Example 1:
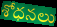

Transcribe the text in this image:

శోధనలు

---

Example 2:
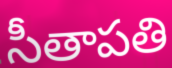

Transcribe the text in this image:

సీతాపతి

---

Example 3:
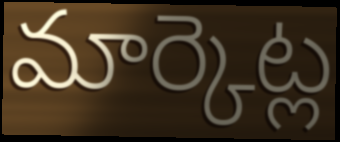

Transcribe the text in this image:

మార్కెట్ల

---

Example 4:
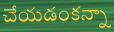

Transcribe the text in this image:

చేయడంకన్నా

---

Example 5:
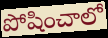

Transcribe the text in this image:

పోషించాలో